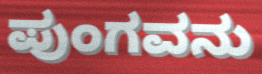
ಪುಂಗವನು